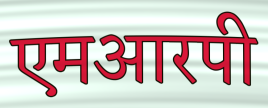
एमआरपी